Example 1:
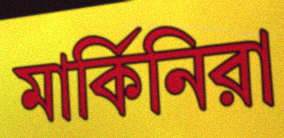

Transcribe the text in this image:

মার্কিনিরা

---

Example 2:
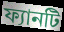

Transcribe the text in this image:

ফ্যানটি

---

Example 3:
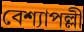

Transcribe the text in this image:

বেশ্যাপল্লী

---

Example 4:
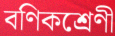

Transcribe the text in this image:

বণিকশ্রেণী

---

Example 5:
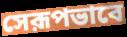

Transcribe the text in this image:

সেরূপভাবে